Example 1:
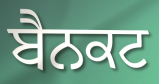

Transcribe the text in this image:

ਬੈਨਕਟ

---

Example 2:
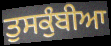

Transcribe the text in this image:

ਤੁਸਕੁੰਬੀਆ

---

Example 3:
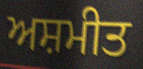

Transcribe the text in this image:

ਅਸ਼ਮੀਤ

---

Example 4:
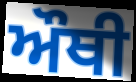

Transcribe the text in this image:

ਔਥੀ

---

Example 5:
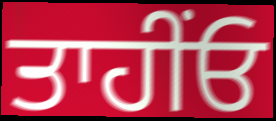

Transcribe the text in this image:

ਤਾਹੀਂਓ